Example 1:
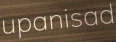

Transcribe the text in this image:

upanisad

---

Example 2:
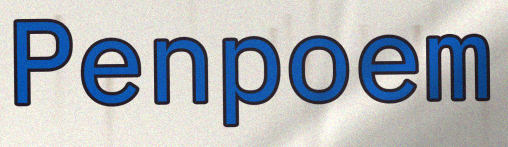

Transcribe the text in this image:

Penpoem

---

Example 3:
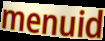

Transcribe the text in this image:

menuid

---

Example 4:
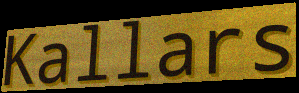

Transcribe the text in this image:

Kallars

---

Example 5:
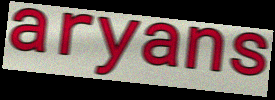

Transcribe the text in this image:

aryans